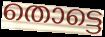
തൊട്ടെ